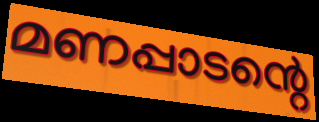
മണപ്പാടന്റെ